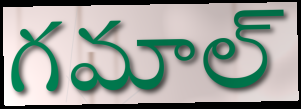
గమాల్